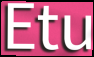
Etu